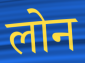
लोन